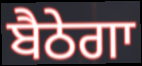
ਬੈਠੇਗਾ